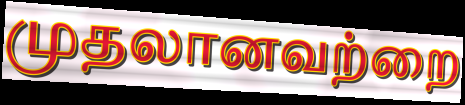
முதலானவற்றை